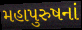
મહાપુરુષનાં